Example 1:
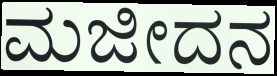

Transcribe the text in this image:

ಮಜೀದನ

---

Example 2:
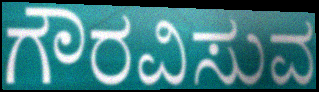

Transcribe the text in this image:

ಗೌರವಿಸುವ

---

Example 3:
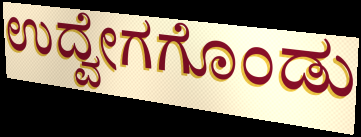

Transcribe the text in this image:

ಉದ್ವೇಗಗೊಂಡು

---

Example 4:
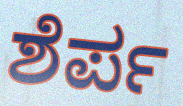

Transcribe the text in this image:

ಶೆರ್ಪ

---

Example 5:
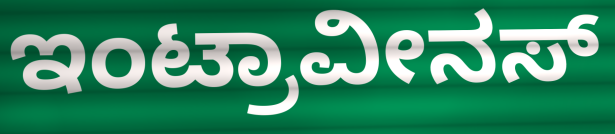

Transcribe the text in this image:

ಇಂಟ್ರಾವೀನಸ್